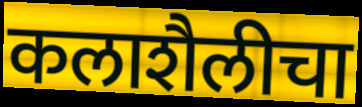
कलाशैलीचा